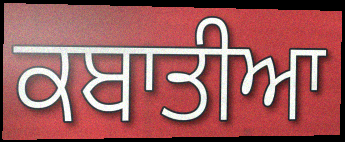
ਕਬਾਤੀਆ